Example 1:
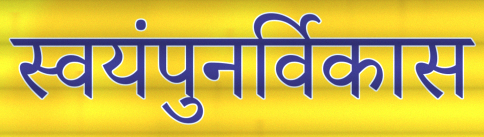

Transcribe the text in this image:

स्वयंपुनर्विकास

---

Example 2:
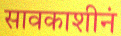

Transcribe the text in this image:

सावकाशीनं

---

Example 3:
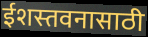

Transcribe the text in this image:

ईशस्तवनासाठी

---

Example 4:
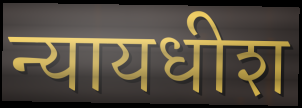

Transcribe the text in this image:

न्यायधीश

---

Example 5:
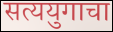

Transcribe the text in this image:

सत्ययुगाचा